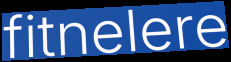
fitnelere